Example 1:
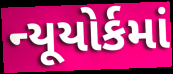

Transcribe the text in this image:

ન્યૂયોર્કમાં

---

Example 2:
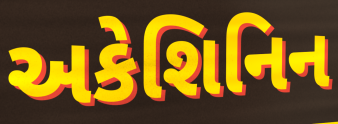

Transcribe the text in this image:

અકેશિનિન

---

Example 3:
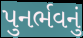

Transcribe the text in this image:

પુનર્ભવનું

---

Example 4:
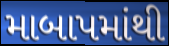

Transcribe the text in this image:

માબાપમાંથી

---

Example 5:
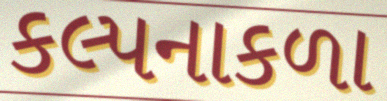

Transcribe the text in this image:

કલ્પનાકળા